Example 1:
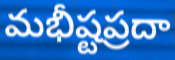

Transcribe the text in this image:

మభీష్టప్రదా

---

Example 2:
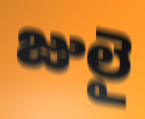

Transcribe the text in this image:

జులై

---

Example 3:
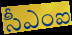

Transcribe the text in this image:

సీఎంఐ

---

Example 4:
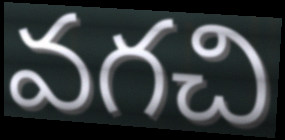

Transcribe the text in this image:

వగచి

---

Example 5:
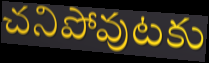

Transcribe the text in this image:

చనిపోవుటకు